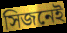
সিজনেই